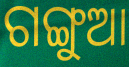
ଗଙ୍ଗୁଆ